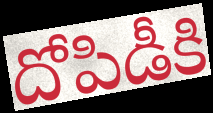
దోపిడీకి